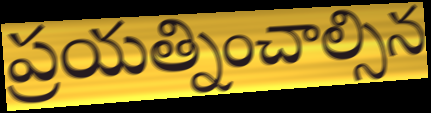
ప్రయత్నించాల్సిన